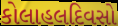
કોલાહલદિવસો